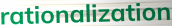
rationalization